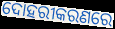
ଦୋହରୀକରଣରେ